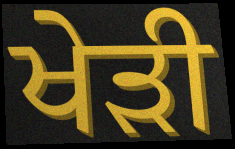
ਖੇੜੀ